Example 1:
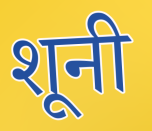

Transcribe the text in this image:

शूनी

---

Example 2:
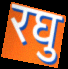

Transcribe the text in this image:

रघु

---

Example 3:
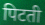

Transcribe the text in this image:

पिटती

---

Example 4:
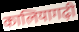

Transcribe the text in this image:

कालियागढ़ी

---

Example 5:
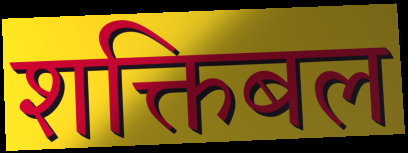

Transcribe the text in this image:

शक्तिबल